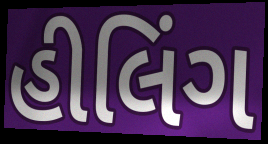
હીલિંગ